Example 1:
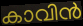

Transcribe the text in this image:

കാവിൻ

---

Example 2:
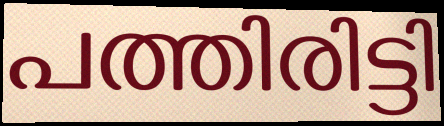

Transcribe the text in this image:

പത്തിരിട്ടി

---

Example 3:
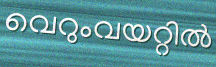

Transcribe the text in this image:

വെറുംവയറ്റിൽ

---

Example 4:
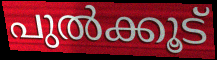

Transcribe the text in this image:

പുൽക്കൂട്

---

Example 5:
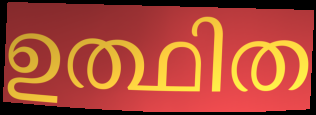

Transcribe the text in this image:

ഉത്ഥിത